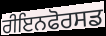
ਰੀਇਨਫੋਰਸਡ